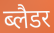
ब्लैडर